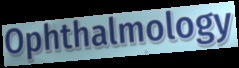
Ophthalmology